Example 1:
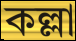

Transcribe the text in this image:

কল্লা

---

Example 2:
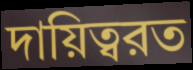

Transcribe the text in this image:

দায়িত্বরত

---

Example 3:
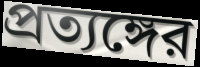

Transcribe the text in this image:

প্রত্যঙ্গের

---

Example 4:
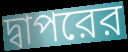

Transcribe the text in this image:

দ্বাপরের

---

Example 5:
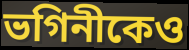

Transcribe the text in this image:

ভগিনীকেও